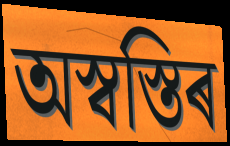
অস্বস্তিৰ